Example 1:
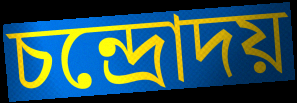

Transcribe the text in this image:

চন্দ্রোদয়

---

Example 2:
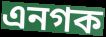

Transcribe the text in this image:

এনগক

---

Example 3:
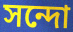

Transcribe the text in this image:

সন্দো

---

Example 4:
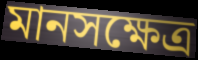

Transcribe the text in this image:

মানসক্ষেত্র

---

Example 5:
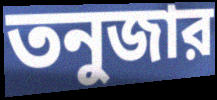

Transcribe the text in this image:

তনুজার